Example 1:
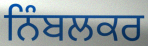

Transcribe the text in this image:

ਨਿੰਬਲਕਰ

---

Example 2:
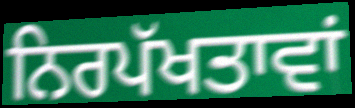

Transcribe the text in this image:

ਨਿਰਪੱਖਤਾਵਾਂ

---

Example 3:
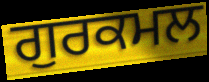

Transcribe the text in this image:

ਗੁਰਕਮਲ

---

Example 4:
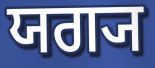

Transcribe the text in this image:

ਯਗ੍ਯ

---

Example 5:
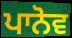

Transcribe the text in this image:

ਪਾਨੋਵ